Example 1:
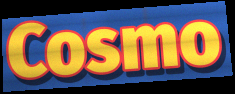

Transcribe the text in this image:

Cosmo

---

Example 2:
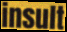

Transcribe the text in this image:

insult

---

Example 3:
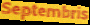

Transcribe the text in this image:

Septembris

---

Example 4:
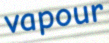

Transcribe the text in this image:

vapour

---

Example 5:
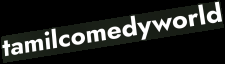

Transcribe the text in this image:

tamilcomedyworld